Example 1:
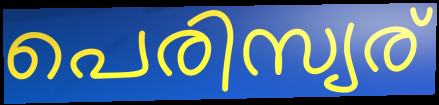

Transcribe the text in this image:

പെരിസ്യര്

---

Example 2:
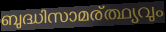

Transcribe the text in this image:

ബുദ്ധിസാമര്ത്ഥ്യവും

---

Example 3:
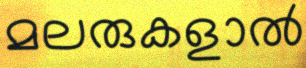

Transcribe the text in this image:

മലരുകളാൽ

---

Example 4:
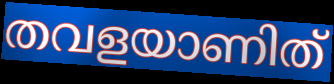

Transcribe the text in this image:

തവളയാണിത്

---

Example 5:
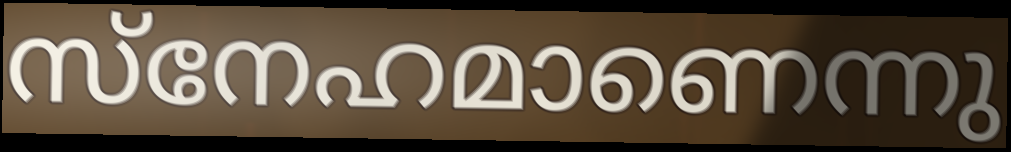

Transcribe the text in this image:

സ്നേഹമാണെന്നു